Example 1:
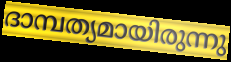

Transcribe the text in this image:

ദാമ്പത്യമായിരുന്നു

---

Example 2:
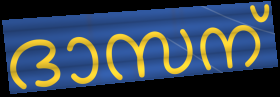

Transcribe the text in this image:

ദാസന്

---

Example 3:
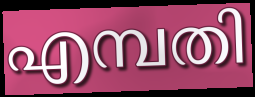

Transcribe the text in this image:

എമ്പതി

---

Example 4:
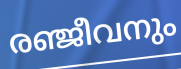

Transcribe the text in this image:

രഞ്ജീവനും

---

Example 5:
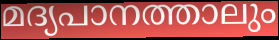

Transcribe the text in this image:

മദ്യപാനത്താലും